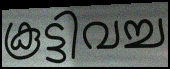
കൂട്ടിവച്ച